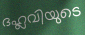
ദഹ്ലവിയുടെ